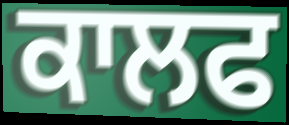
ਕਾਲਫ